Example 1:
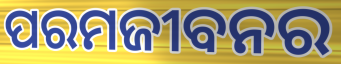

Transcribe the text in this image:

ପରମଜୀବନର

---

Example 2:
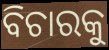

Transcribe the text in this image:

ବିଚାରକୁ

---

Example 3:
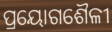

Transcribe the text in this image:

ପ୍ରୟୋଗଶୈଳୀ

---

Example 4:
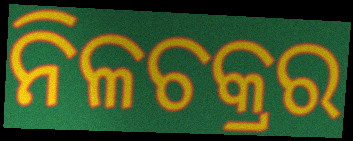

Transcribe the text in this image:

ନିଳଚକ୍ରର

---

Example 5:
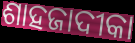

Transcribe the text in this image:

ଶାହଜାଦୀକା